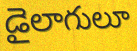
డైలాగులూ